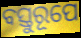
ବସ୍ତୁରୂପେ